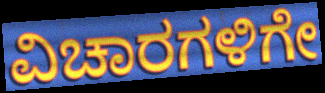
ವಿಚಾರಗಳಿಗೇ